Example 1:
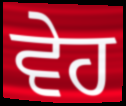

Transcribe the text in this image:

ਵੇਹ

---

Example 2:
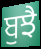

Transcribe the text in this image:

ਬੁਝੈ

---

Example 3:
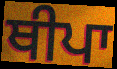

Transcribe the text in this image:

ਥੀਪਾ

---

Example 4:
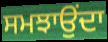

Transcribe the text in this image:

ਸਮਝਾਉਂਦਾ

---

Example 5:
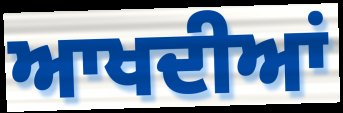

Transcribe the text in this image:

ਆਖਦੀਆਂ